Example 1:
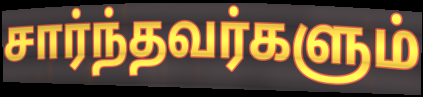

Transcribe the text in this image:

சார்ந்தவர்களும்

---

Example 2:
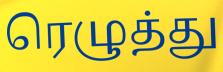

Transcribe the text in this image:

ரெழுத்து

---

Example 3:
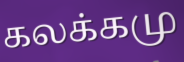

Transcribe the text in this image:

கலக்கமு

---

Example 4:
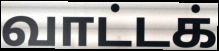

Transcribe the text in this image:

வாட்டக்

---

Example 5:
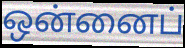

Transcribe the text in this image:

ஒன்னைப்